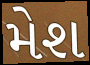
મેશ